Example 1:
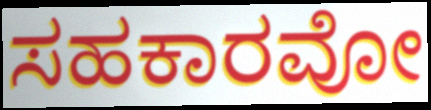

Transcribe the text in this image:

ಸಹಕಾರವೋ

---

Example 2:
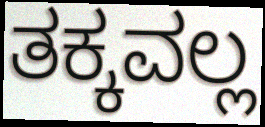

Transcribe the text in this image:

ತಕ್ಕವಲ್ಲ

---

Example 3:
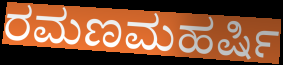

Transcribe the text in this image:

ರಮಣಮಹರ್ಷಿ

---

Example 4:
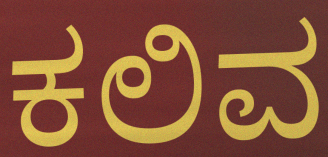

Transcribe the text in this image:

ಕಲಿವ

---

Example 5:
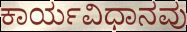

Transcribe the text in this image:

ಕಾರ್ಯವಿಧಾನವು